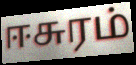
ஈசுரம்